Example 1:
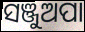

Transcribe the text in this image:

ସଞ୍ଜୁଅପା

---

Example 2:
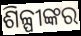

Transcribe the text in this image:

ଶିଳ୍ପୀଙ୍କର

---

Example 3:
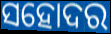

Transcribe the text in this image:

ସହୋଦର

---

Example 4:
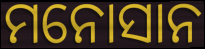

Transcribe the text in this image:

ମନୋସାନ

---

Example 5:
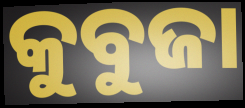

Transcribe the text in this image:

କୁବୁଜା